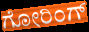
ಗೋರಿಂಗ್